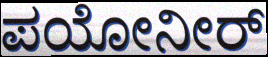
ಪಯೋನೀರ್